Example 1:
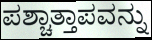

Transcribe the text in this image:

ಪಶ್ಚಾತ್ತಾಪವನ್ನು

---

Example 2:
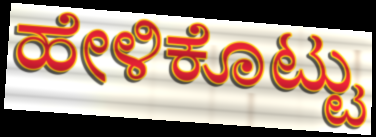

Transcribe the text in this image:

ಹೇಳಿಕೊಟ್ಟು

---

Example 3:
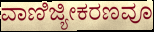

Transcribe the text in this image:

ವಾಣಿಜ್ಯೀಕರಣವೂ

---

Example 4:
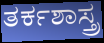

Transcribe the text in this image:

ತರ್ಕಶಾಸ್ತ್ರ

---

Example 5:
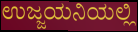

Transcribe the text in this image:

ಉಜ್ಜಯನಿಯಲ್ಲಿ